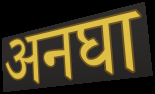
अनघा